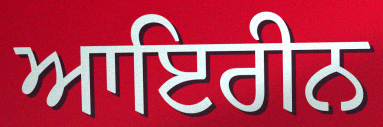
ਆਇਰੀਨ